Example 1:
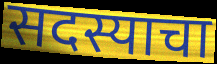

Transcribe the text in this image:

सदस्याचा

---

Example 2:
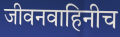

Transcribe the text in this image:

जीवनवाहिनीच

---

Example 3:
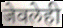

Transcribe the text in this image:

जेवलेही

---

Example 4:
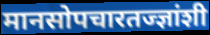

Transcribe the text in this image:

मानसोपचारतज्ज्ञांशी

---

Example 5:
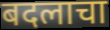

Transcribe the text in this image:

बदलाचा